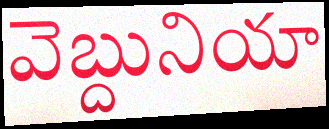
వెబ్దునియా